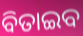
ବିତାଇବ